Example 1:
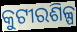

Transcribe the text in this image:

କୁଟୀରଶିଳ୍ପ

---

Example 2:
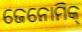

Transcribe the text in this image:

ଜେନୋମିକ୍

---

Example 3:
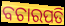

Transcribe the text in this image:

ବଚାରପତି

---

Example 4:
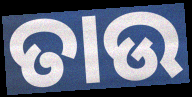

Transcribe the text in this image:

ତାଉ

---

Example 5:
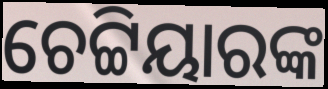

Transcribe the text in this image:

ଚେଟ୍ଟିୟାରଙ୍କ